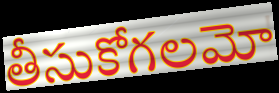
తీసుకోగలమో